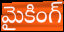
మైకింగ్